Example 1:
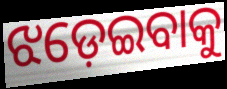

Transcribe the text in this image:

ଝଡ଼େଇବାକୁ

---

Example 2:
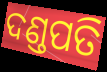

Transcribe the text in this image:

ଦଣ୍ଡପତି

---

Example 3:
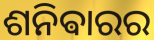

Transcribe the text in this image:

ଶନିଵାରର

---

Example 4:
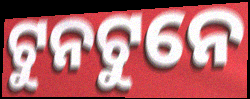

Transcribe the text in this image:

ଟୁନଟୁନେ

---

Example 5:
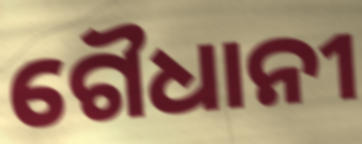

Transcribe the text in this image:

ଗୈଧାନୀ